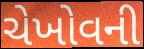
ચેખોવની